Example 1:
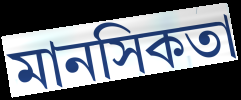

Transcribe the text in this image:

মানসিকতা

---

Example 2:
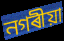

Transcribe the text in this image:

নগৰীয়া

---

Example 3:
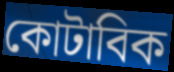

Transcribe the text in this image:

কোটাবিক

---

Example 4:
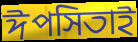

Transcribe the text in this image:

ঈপসিতাই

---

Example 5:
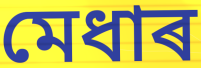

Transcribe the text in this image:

মেধাৰ